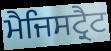
ਮੈਜਿਸਟ੍ਰੈਟ